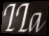
IIa